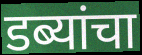
डब्यांचा